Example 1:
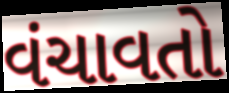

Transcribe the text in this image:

વંચાવતો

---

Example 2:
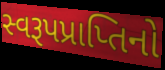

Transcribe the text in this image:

સ્વરૂપપ્રાપ્તિનો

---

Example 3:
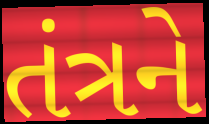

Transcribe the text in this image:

તંત્રને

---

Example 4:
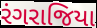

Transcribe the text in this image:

રંગરાજિયા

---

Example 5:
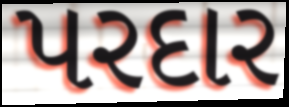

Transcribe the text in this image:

પરદાર